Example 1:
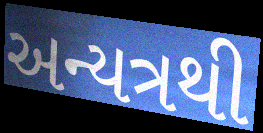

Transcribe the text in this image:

અન્યત્રથી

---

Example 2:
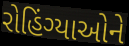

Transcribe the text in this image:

રોહિંગ્યાઓને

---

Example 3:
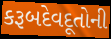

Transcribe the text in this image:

કરૂબદેવદૂતોની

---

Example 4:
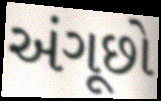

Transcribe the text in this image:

અંગૂછો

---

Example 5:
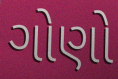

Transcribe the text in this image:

ગોણો